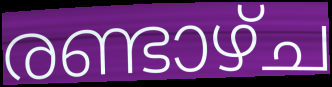
രണ്ടാഴ്ച